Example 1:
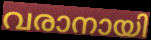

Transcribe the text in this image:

വരാനായി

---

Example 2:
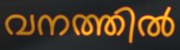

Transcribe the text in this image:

വനത്തിൽ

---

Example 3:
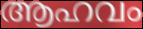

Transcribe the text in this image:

ആഹവം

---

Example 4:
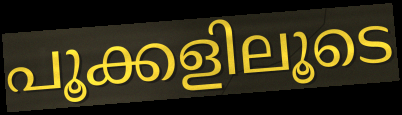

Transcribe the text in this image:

പൂക്കളിലൂടെ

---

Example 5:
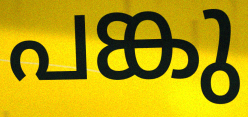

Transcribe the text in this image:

പങ്കു